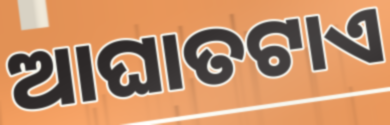
ଆଘାତଟାଏ